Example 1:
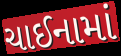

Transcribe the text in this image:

ચાઈનામાં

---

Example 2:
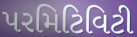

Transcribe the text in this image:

પરમિટિવિટી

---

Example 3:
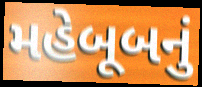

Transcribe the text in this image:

મહેબૂબનું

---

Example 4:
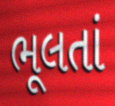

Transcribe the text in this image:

ભૂલતાં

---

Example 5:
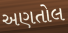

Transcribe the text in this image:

અણતોલ